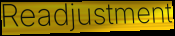
Readjustment